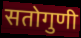
सतोगुणी